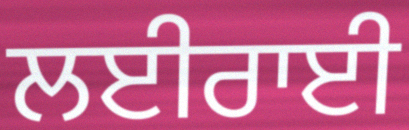
ਲਈਰਾਈ